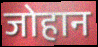
जोहान